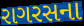
રાગરસના